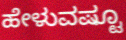
ಹೇಳುವಷ್ಟೂ